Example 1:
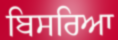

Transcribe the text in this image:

ਬਿਸਰਿਆ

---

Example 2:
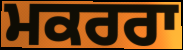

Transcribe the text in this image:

ਮਕਰਰਾ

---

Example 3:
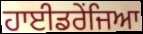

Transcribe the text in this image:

ਹਾਈਡਰੇਂਜਿਆ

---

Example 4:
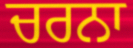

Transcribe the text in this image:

ਚਰਨਾ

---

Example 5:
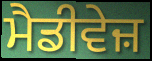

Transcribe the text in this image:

ਮੈਡੀਵੇਜ਼